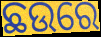
ଛଉରେ